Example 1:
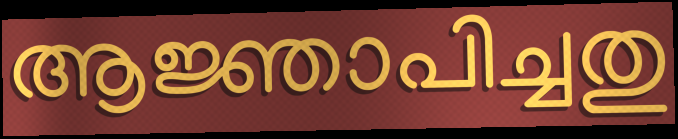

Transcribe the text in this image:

ആജ്ഞാപിച്ചതു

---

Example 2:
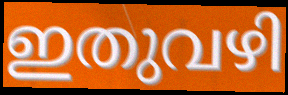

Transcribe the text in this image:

ഇതുവഴി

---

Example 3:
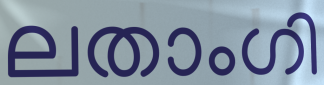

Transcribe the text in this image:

ലതാംഗി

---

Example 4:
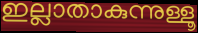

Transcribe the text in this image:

ഇല്ലാതാകുന്നുള്ളൂ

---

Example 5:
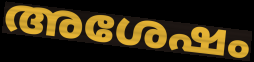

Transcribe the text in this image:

അശേഷം